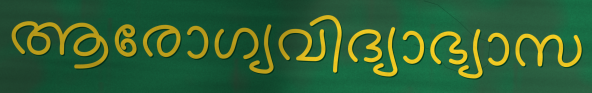
ആരോഗ്യവിദ്യാഭ്യാസ